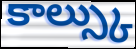
కాల్స్కు